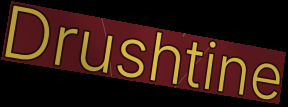
Drushtine